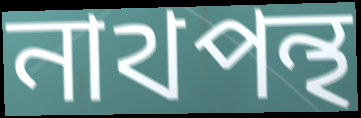
নাথপন্থ